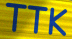
TTK